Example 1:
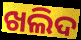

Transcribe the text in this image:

ଖଲିଦ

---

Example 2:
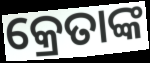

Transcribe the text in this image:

କ୍ରେତାଙ୍କ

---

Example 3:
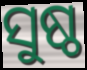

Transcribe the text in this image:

ସୁଷ୍ଠ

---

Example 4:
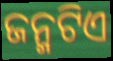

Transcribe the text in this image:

ଜନ୍ମଟିଏ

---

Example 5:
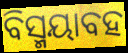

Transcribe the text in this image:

ବିସ୍ମୟାବହ